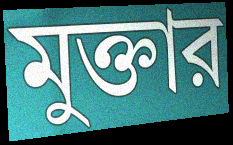
মুক্তার